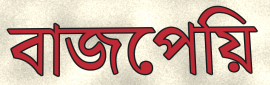
বাজপেয়ি